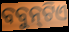
ବବୁନ୍‍ଟିଏ